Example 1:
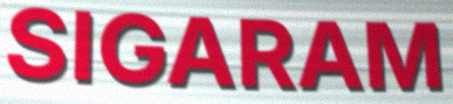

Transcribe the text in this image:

SIGARAM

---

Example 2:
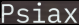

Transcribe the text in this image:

Psiax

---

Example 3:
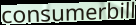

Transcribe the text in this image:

consumerbill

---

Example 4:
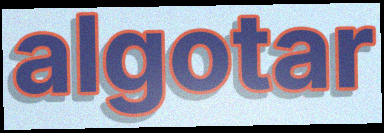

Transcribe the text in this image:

algotar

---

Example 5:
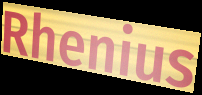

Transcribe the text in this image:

Rhenius